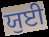
ਯੁਈ